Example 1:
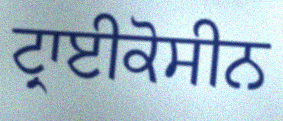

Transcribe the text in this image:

ਟ੍ਰਾਈਕੋਸੀਨ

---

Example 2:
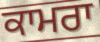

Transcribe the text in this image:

ਕਾਮਰਾ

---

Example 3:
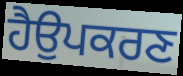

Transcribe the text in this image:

ਹੈਉਪਕਰਣ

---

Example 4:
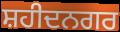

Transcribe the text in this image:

ਸ਼ਹੀਦਨਗਰ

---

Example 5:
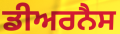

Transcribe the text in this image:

ਡੀਅਰਨੈਸ